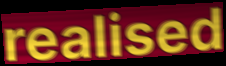
realised